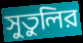
সুতুলির